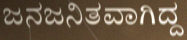
ಜನಜನಿತವಾಗಿದ್ದ